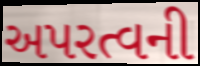
અપરત્વની